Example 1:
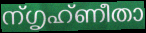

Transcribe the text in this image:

ന്ഗൃഹ്ണീതാ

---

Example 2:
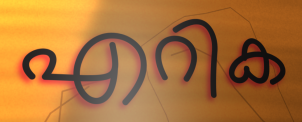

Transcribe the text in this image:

എറിക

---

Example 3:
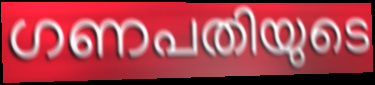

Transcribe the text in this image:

ഗണപതിയുടെ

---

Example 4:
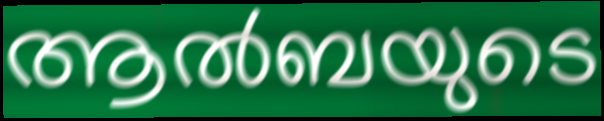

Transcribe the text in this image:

ആൽബയുടെ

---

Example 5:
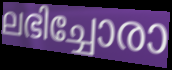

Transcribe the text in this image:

ലഭിച്ചോരാ